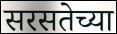
सरसतेच्या